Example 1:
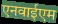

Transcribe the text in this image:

एनवाईएम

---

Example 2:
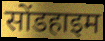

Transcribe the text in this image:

सोंडहाइम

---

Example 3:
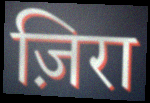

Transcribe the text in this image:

ज़िरा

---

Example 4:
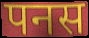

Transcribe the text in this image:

पनस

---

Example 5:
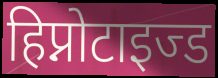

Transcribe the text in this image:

हिप्नोटाइज्ड